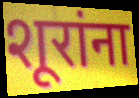
शूरांना